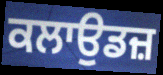
ਕਲਾਉਡਜ਼